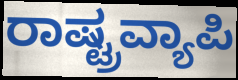
ರಾಷ್ಟ್ರವ್ಯಾಪಿ